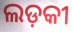
ଲଡ଼କୀ